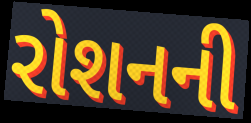
રોશનની